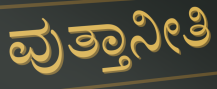
ವುತ್ತಾನೀತಿ